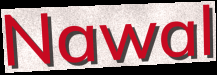
Nawal